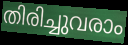
തിരിച്ചുവരാം